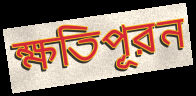
ক্ষতিপূরন